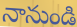
నానుండి